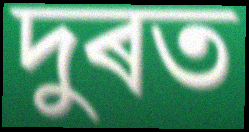
দুৰত